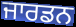
ਜਾਰਡਨ